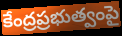
కేంద్రప్రభుత్వంపై